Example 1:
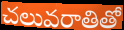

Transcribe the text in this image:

చలువరాతితో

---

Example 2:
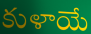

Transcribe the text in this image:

కుళాయే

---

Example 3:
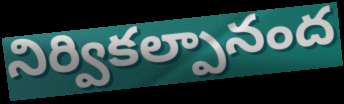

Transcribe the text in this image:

నిర్వికల్పానంద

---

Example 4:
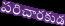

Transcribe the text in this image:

పరిచారకుడ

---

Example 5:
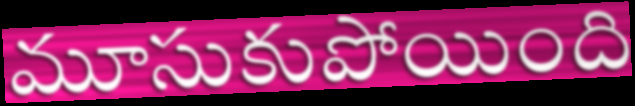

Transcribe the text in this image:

మూసుకుపోయింది